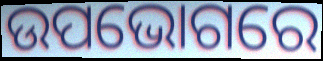
ଉପଭୋଗରେ